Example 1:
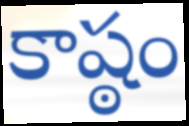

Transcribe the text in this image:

కాష్ఠం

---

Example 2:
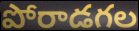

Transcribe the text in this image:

పోరాడగల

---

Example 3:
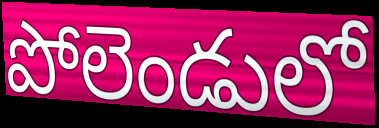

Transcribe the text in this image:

పోలెండులో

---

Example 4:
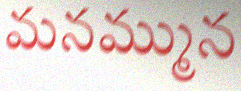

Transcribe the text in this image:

మనమ్మున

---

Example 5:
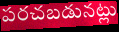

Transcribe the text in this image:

పరచబడునట్లు